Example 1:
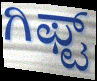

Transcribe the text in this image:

ಗಿಫ್ಟ್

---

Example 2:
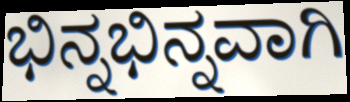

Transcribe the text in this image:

ಭಿನ್ನಭಿನ್ನವಾಗಿ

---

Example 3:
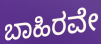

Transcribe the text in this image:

ಬಾಹಿರವೇ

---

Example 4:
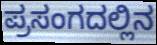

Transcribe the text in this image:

ಪ್ರಸಂಗದಲ್ಲಿನ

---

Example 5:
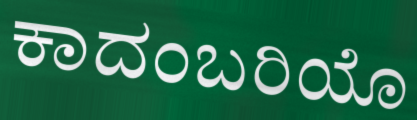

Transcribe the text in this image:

ಕಾದಂಬರಿಯೊ